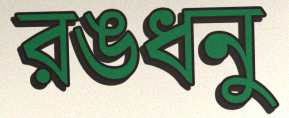
রঙধনু